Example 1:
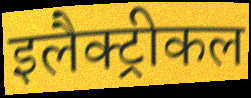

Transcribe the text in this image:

इलैक्ट्रीकल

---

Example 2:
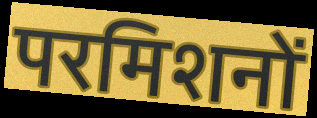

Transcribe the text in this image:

परमिशनों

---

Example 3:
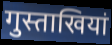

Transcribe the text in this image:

गुस्ताखियां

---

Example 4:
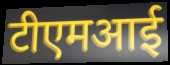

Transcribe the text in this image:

टीएमआई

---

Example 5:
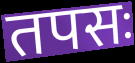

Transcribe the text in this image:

तपसः